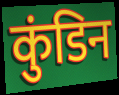
कुंडिन